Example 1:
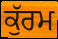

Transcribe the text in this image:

ਕੁੱਰਮ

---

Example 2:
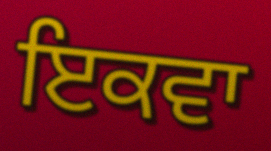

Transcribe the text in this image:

ਇਕਵਾ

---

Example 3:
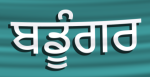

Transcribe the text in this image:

ਬਡੂੰਗਰ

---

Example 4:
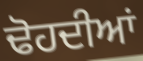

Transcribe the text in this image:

ਢੋਹਦੀਆਂ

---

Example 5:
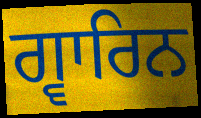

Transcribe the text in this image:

ਗ੍ਵਾਰਿਨ